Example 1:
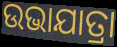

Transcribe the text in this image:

ଉଭାଯାତ୍ରା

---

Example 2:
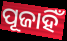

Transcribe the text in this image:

ପୂଜାହିଁ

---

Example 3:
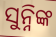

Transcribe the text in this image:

ସୁନ୍ନିଙ୍କ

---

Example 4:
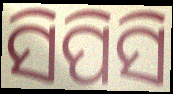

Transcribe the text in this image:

ସିପିସି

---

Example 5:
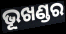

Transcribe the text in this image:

ଭୂଖଣ୍ଡର